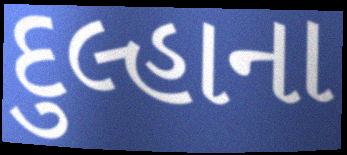
દુલ્હાના